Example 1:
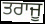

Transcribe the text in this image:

ਤਰਾਜੂ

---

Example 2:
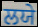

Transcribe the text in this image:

ਲਯੇ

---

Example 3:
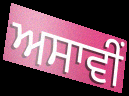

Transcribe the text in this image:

ਅਸਾਵੀਂ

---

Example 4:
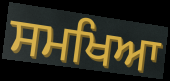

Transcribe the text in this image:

ਸਮਖਿਆ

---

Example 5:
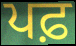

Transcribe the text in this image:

ਪਫ਼